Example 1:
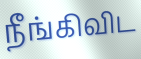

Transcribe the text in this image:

நீங்கிவிட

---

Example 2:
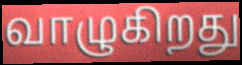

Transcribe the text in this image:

வாழுகிறது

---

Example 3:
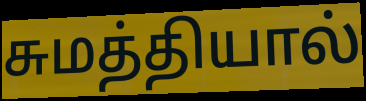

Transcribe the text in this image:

சுமத்தியால்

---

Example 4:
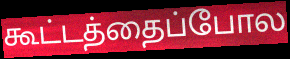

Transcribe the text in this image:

கூட்டத்தைப்போல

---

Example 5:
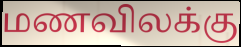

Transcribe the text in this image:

மணவிலக்கு